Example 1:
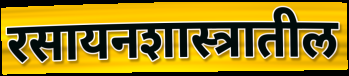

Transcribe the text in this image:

रसायनशास्त्रातील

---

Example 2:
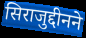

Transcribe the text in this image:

सिराजुद्दीनने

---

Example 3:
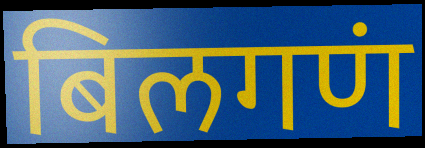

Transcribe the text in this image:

बिलगणं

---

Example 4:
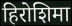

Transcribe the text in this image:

हिरोशिमा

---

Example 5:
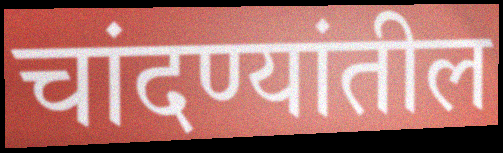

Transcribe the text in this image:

चांदण्यांतील